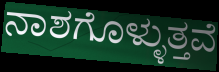
ನಾಶಗೊಳ್ಳುತ್ತವೆ